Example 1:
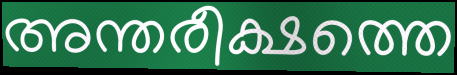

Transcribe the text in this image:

അന്തരീക്ഷത്തെ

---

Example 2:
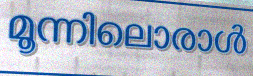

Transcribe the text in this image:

മൂന്നിലൊരാൾ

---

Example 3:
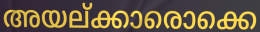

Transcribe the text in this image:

അയല്ക്കാരൊക്കെ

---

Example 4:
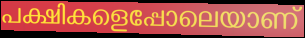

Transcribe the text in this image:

പക്ഷികളെപ്പോലെയാണ്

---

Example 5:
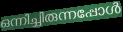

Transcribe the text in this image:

ഒന്നിച്ചിരുന്നപ്പോൾ